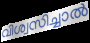
വിശ്വസിച്ചാൽ